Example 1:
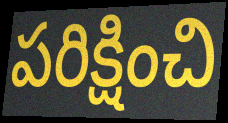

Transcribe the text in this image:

పరిక్షించి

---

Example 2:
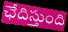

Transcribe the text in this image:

ఛేదిస్తుంది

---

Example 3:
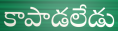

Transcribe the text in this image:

కాపాడలేడు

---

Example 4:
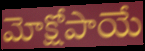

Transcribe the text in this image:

మోక్షోపాయే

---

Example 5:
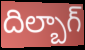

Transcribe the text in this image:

దిల్బాగ్